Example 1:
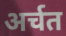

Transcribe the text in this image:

अर्चत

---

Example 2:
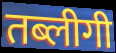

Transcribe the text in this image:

तब्लीगी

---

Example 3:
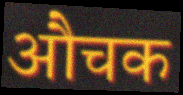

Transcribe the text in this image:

औचक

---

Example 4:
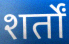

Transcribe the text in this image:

शर्तों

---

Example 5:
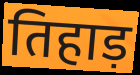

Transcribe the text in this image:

तिहाड़